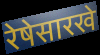
रेषेसारखे